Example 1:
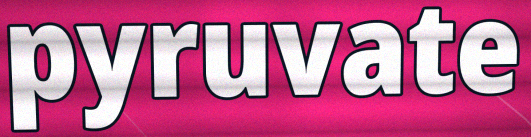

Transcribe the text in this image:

pyruvate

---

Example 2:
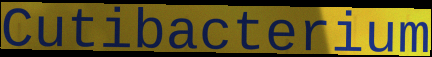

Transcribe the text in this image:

Cutibacterium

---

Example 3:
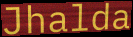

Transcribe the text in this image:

Jhalda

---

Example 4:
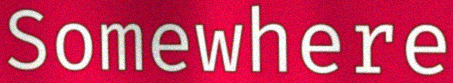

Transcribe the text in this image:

Somewhere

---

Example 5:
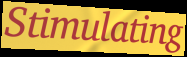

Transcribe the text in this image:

Stimulating